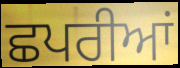
ਛਪਰੀਆਂ